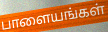
பாளையங்கள்